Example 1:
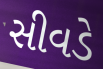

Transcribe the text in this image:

સીવડે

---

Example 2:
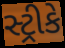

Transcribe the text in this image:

સ્ટ્રીકે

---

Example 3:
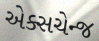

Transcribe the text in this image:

એક્સચેન્જ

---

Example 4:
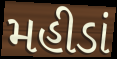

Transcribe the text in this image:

મહીડાં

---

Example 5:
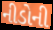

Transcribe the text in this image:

નીડોની